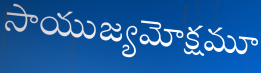
సాయుజ్యమోక్షమూ